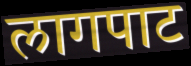
लागपाट